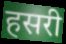
हसरी